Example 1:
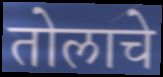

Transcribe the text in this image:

तोलाचे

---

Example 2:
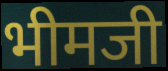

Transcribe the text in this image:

भीमजी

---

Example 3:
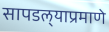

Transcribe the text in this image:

सापडल्याप्रमाणे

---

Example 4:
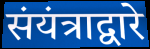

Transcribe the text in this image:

संयंत्राद्वारे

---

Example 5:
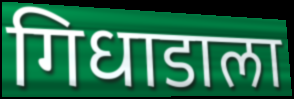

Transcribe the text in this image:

गिधाडाला